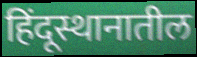
हिंदूस्थानातील